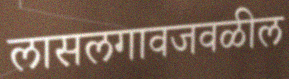
लासलगावजवळील